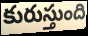
కురుస్తుంది